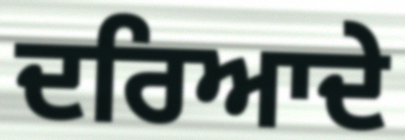
ਦਰਿਆਦੇ